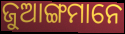
ଜୁଆଙ୍ଗମାନେ